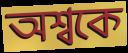
অশ্বকে